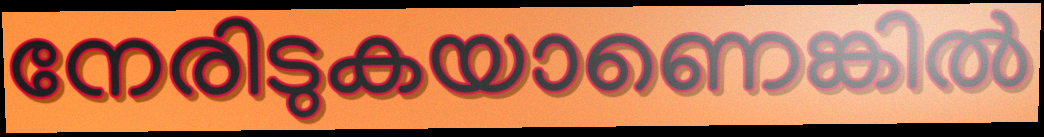
നേരിടുകയാണെങ്കിൽ